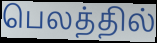
பெலத்தில்